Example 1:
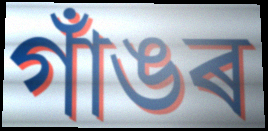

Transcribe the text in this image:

গাঁঙৰ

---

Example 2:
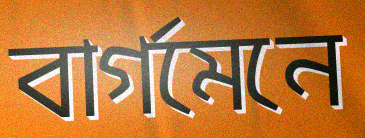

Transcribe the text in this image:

বাৰ্গমেনে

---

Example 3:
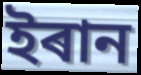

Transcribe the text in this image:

ইৰান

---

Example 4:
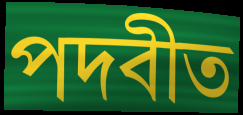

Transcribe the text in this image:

পদবীত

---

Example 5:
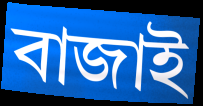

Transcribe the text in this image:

বাজাই